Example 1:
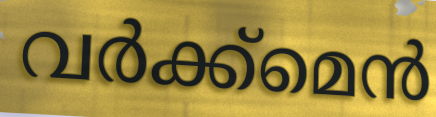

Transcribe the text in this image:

വർക്ക്മെൻ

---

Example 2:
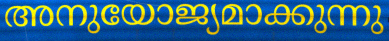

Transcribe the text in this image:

അനുയോജ്യമാക്കുന്നു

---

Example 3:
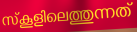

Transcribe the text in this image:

സ്‌കൂളിലെത്തുന്നത്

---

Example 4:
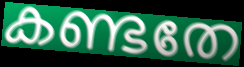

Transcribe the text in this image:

കണ്ടതേ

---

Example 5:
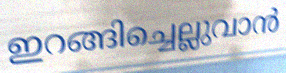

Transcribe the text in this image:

ഇറങ്ങിച്ചെല്ലുവാൻ